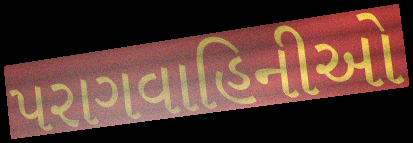
પરાગવાહિનીઓ